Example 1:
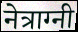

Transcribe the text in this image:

नेत्राग्नी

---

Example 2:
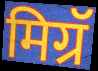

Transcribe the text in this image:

मिग्रॅ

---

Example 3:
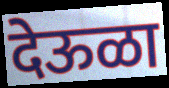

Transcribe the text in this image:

देऊळा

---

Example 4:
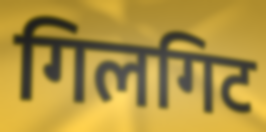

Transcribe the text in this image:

गिलगिट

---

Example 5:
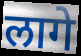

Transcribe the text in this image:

लागे